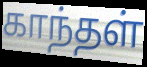
காந்தள்